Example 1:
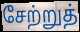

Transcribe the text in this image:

சேற்றுத்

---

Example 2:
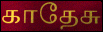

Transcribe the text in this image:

காதேசு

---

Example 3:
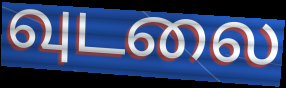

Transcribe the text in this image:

வுடலை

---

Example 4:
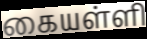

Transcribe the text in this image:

கையள்ளி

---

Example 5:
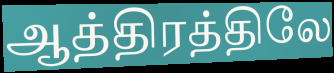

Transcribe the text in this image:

ஆத்திரத்திலே